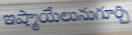
ఇష్మాయేలునుగూర్చి